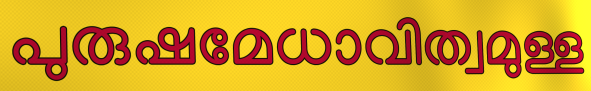
പുരുഷമേധാവിത്വമുള്ള